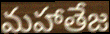
మహాతేజ